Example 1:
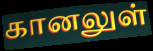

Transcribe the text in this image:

கானலுள்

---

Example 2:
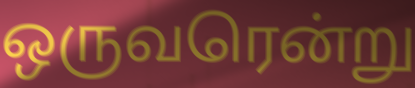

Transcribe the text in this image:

ஒருவரென்று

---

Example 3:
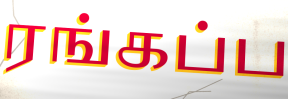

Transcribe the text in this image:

ரங்கப்ப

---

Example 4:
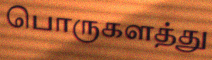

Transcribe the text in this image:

பொருகளத்து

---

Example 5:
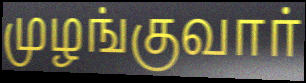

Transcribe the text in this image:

முழங்குவார்